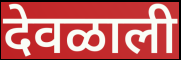
देवळाली